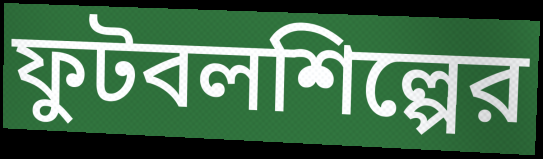
ফুটবলশিল্পের